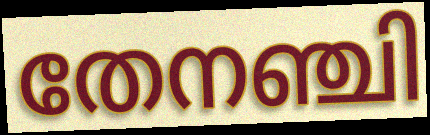
തേനഞ്ചി